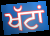
ਖੱਟਾਂ